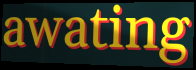
awating